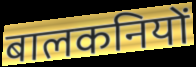
बालकनियों